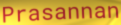
Prasannan